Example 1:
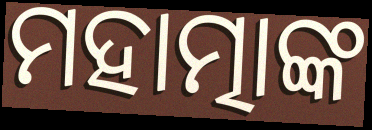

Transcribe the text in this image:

ମହାତ୍ମାଙ୍କ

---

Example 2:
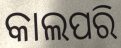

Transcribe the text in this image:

କାଲପରି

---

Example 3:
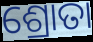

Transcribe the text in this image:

ଶ୍ରୋତା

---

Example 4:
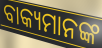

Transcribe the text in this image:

ବାକ୍ୟମାନଙ୍କ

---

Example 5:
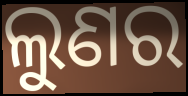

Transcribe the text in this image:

ଲୁଣର